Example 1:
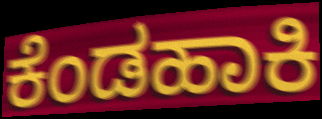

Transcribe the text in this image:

ಕೆಂಡಹಾಕಿ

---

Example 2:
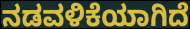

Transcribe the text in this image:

ನಡವಳಿಕೆಯಾಗಿದೆ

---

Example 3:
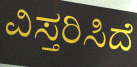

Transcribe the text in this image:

ವಿಸ್ತರಿಸಿದೆ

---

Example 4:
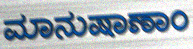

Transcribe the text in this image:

ಮಾನುಷಾಣಾಂ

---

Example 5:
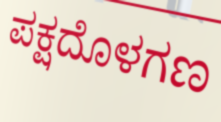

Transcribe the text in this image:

ಪಕ್ಷದೊಳಗಣ